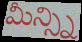
మీన్స్ని